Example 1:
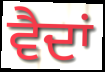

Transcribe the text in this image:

ਵੈਦਾਂ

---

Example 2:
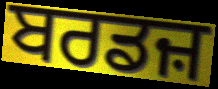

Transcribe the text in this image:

ਬਰਡਜ਼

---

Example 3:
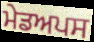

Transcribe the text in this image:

ਮੇਡਅਪਸ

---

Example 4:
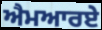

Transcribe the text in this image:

ਐਮਆਰਏ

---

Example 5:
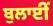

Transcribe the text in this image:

ਬੁਲਾਈਂ